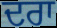
ਦਰਾ